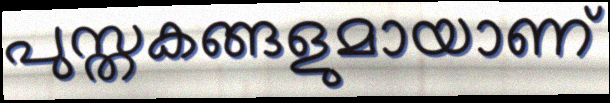
പുസ്തകങ്ങളുമായാണ്